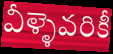
వీళ్ళెవరికీ